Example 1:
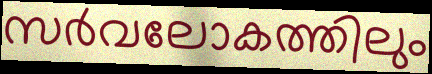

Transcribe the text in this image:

സർവലോകത്തിലും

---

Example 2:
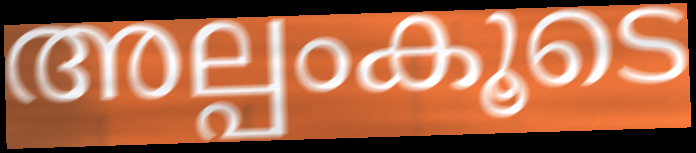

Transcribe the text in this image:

അല്പംകൂടെ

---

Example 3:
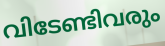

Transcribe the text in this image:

വിടേണ്ടിവരും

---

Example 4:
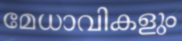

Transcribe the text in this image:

മേധാവികളും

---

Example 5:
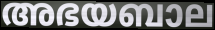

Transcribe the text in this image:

അഭയബാല